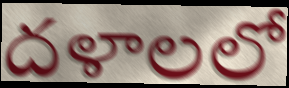
దళాలలో